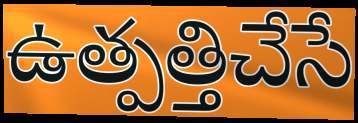
ఉత్పత్తిచేసే